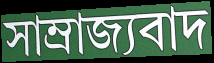
সাম্রাজ্যবাদ